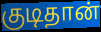
குடிதான்